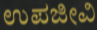
ಉಪಜೀವಿ